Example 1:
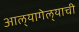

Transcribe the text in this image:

आल्यागेल्याची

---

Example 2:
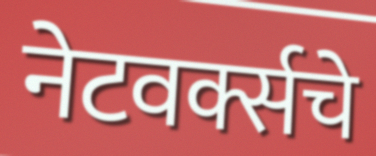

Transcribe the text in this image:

नेटवर्क्सचे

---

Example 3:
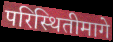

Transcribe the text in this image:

परिस्थितीमागे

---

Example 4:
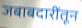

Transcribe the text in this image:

जबाबदारींतून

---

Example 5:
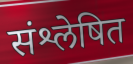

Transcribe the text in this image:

संश्लेषित